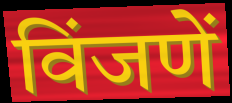
विंजणें